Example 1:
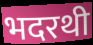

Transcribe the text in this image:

भदरथी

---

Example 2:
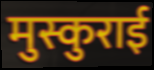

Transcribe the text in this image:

मुस्कुराई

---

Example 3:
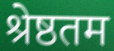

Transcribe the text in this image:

श्रेष्ठतम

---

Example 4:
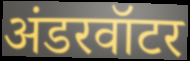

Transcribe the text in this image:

अंडरवॉटर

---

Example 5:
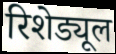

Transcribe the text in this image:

रिशेड्यूल